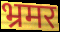
भ्रमर